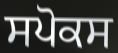
ਸਪੋਕਸ